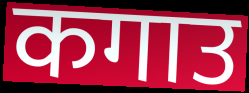
कगाउ